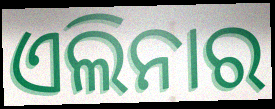
ଏଲିନାର